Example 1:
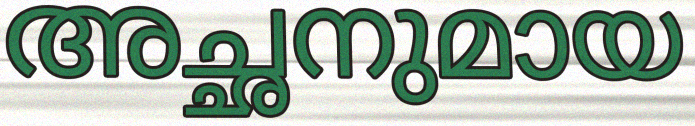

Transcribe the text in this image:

അച്ഛനുമായ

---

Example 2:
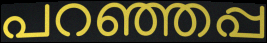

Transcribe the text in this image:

പറഞ്ഞപ്പ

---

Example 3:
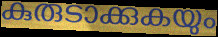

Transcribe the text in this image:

കുരുടാക്കുകയും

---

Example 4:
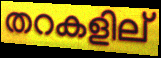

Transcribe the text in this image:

തറകളില്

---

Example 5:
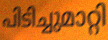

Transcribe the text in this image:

പിടിച്ചുമാറ്റി